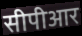
सीपीआर